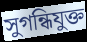
সুগন্ধিযুক্ত